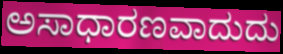
ಅಸಾಧಾರಣವಾದುದು